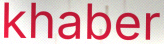
khaber